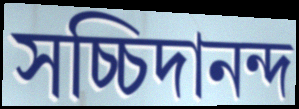
সচ্চিদানন্দ